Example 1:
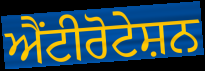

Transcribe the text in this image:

ਐਂਟੀਰੋਟੇਸ਼ਨ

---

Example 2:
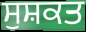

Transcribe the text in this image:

ਸੁਸ਼ਕਤ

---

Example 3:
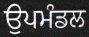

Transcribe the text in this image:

ਉਪਮੰਡਲ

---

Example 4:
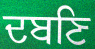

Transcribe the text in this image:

ਦਬਣਿ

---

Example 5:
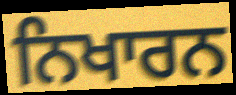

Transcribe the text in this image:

ਨਿਖਾਰਨ